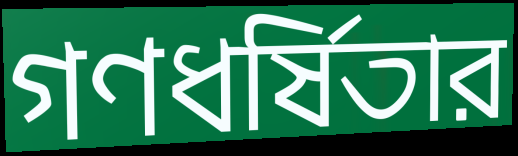
গণধর্ষিতার